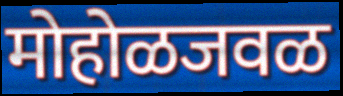
मोहोळजवळ